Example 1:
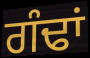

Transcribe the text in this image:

ਗੰਢਾਂ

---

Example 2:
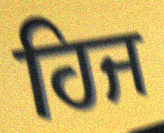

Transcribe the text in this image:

ਹਿਜ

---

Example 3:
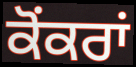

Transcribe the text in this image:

ਕੋਂਕਰਾਂ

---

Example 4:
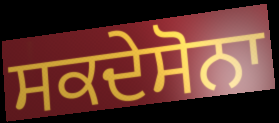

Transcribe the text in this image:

ਸਕਦੇਸੋਨਾ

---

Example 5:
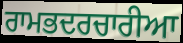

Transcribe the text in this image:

ਰਾਮਭਦਰਚਾਰੀਆ